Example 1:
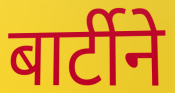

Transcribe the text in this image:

बार्टीने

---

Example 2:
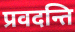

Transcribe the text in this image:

प्रवदन्ति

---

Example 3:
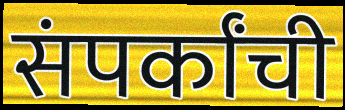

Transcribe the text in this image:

संपर्कांची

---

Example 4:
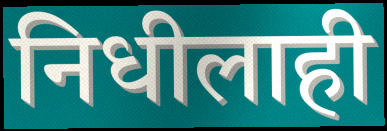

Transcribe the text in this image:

निधीलाही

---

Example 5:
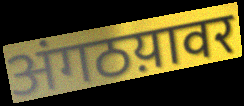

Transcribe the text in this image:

अंगठय़ावर